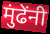
मुंढेंनी